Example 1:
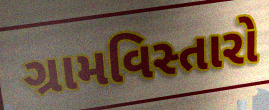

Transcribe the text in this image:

ગ્રામવિસ્તારો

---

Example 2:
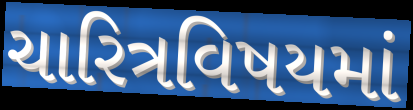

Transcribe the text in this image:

ચારિત્રવિષયમાં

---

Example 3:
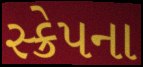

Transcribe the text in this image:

સ્ક્રેપના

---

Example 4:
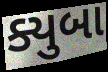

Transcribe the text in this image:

ક્યુબા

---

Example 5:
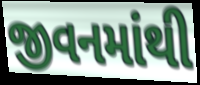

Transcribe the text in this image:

જીવનમાંથી